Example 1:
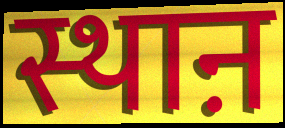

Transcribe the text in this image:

स्थाऩ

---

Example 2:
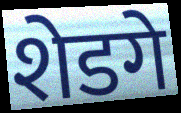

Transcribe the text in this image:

शेडगे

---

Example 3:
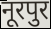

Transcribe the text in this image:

नूरपुर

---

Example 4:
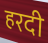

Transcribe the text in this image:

हरदी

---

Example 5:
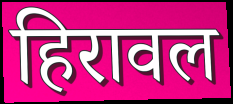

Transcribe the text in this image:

हिरावल